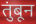
तुंबून